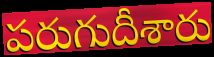
పరుగుదీశారు